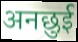
अनछुई